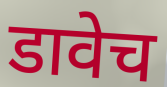
डावेच